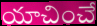
యాచించే